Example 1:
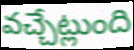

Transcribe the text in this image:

వచ్చేట్లుంది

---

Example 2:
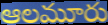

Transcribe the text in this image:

ఆలమూరు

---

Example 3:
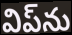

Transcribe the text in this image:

విప్‌ను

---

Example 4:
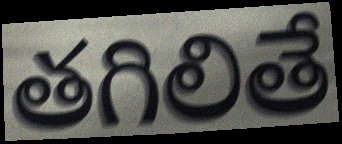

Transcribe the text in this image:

తగిలితే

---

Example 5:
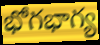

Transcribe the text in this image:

భోగభాగ్య